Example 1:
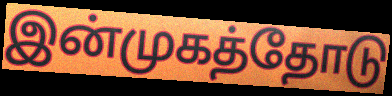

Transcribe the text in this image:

இன்முகத்தோடு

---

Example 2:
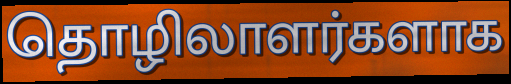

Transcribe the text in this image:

தொழிலாளர்களாக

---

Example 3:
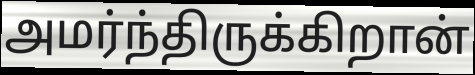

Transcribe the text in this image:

அமர்ந்திருக்கிறான்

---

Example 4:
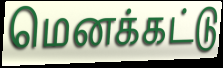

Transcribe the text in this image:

மெனக்கட்டு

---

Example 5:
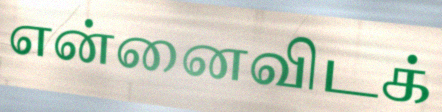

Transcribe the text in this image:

என்னைவிடக்